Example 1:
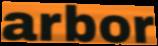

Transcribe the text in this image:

arbor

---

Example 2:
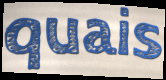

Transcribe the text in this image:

quais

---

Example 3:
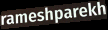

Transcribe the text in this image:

rameshparekh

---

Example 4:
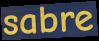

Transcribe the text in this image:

sabre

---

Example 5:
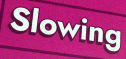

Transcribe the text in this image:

Slowing